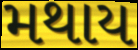
મથાય